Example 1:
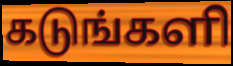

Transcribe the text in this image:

கடுங்களி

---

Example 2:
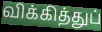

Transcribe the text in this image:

விக்கித்துப்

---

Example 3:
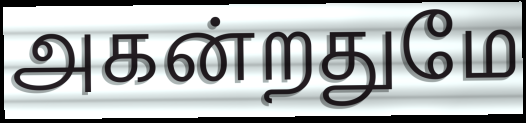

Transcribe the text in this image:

அகன்றதுமே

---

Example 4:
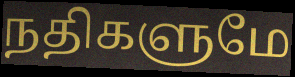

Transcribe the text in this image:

நதிகளுமே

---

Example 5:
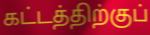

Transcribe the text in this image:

கட்டத்திற்குப்